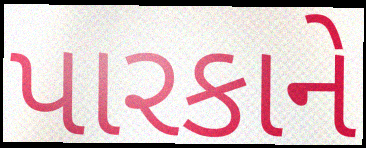
પારકાને